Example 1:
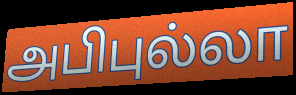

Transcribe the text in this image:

அபிபுல்லா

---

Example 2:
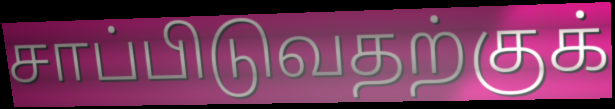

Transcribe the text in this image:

சாப்பிடுவதற்குக்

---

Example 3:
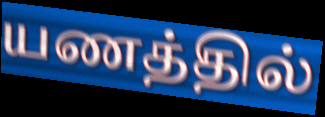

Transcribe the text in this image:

யணத்தில்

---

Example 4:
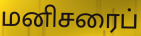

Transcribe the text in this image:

மனிசரைப்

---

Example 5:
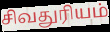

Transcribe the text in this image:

சிவதுரியம்